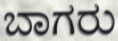
ಬಾಗರು